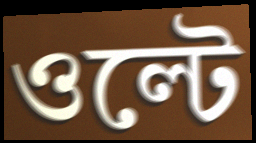
ওল্টে